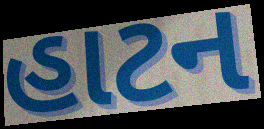
હાટન